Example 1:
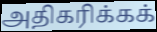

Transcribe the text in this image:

அதிகரிக்கக்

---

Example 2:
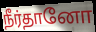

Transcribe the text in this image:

நீர்தானோ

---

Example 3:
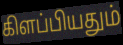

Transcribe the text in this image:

கிளப்பியதும்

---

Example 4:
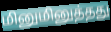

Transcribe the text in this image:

மினுமினுத்தது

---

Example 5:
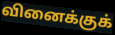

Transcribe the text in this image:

வினைக்குக்